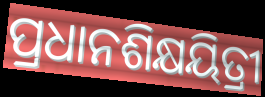
ପ୍ରଧାନଶିକ୍ଷୟିତ୍ରୀ